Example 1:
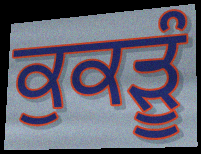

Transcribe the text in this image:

ਕੁਕੜੂੰ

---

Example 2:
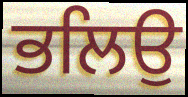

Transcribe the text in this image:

ਭਲਿਉ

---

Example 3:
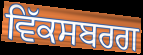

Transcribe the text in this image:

ਵਿੱਕਸਬਰਗ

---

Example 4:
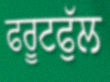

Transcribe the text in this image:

ਫਰੂਟਫੁੱਲ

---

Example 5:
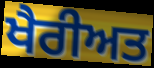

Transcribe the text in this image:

ਖੈਰੀਅਤ